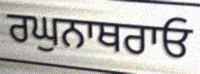
ਰਘੁਨਾਥਰਾਓ